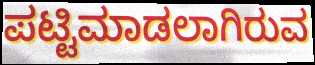
ಪಟ್ಟಿಮಾಡಲಾಗಿರುವ